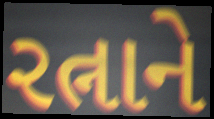
રત્નાને